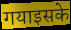
गयाइसके